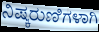
ನಿಷ್ಕರುಣಿಗಳಾಗಿ